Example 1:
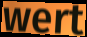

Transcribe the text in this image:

wert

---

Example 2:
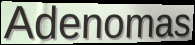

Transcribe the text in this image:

Adenomas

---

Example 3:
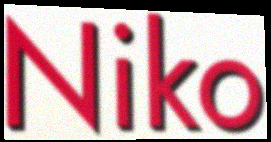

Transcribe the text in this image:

Niko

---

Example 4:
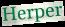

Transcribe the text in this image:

Herper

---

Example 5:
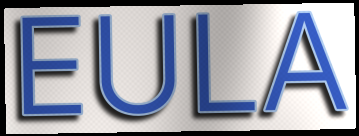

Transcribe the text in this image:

EULA